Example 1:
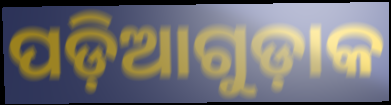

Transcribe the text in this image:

ପଡ଼ିଆଗୁଡ଼ାକ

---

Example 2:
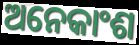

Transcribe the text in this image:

ଅନେକାଂଶ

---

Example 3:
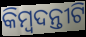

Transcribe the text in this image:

କିମ୍ୱଦନ୍ତୀଟି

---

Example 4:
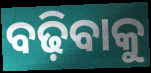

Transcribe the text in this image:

ବଢ଼ିବାକୁ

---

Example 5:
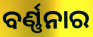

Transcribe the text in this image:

ବର୍ଣ୍ଣନାର